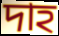
দাহ